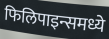
फिलिपाइन्समध्ये